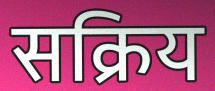
सक्रिय